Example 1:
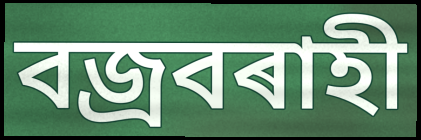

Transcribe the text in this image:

বজ্ৰবৰাহী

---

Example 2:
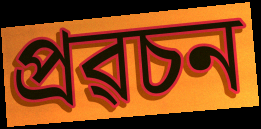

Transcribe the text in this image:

প্ৰৱচন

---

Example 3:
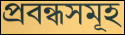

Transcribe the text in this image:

প্ৰবন্ধসমূহ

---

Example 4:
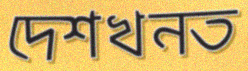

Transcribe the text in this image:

দেশখনত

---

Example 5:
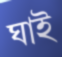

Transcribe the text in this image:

ঘাই